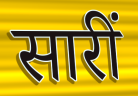
सारीं